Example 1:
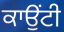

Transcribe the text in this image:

ਕਾਉਂਟੀ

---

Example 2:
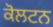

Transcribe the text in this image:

ਕੋਲਟਨ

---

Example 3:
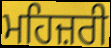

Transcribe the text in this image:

ਮਹਿਜ਼ਰੀ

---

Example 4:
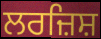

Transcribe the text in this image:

ਲਰਜ਼ਿਸ਼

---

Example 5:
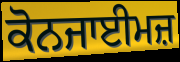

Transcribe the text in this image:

ਕੋਨਜਾਈਮਜ਼